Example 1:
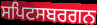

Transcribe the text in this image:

ਸਪਿਟਸਬਰਗਨ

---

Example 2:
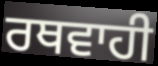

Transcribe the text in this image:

ਰਥਵਾਹੀ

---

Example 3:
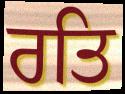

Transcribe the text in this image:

ਰਤਿ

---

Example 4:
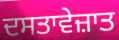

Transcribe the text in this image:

ਦਸਤਾਵੇਜ਼ਾਤ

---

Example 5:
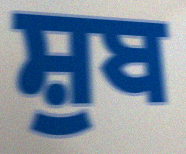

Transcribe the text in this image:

ਸ਼ੁਬ